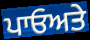
ਪਾਓਅਤੇ